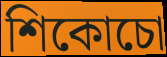
শিকোচো